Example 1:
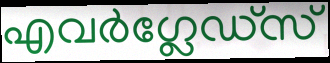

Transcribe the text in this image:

എവർഗ്ലേഡ്സ്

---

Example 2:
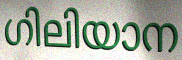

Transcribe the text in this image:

ഗിലിയാന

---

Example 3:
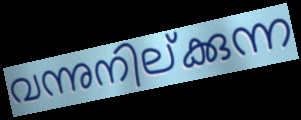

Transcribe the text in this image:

വന്നുനില്ക്കുന്ന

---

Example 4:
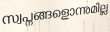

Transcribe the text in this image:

സ്വപ്നങ്ങളൊന്നുമില്ല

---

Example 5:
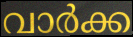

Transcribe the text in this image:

വാർക്ക